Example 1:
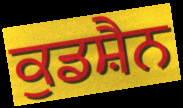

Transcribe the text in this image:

ਕੁਡਸ਼ੈਨ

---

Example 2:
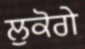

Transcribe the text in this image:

ਲੁਕੋਗੇ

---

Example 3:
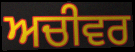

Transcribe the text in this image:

ਅਚੀਵਰ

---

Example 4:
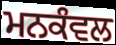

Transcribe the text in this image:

ਮਨਕੰਵਲ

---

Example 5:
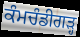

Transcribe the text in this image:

ਕੰਮਚੰਡੀਗੜ੍ਹ